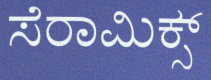
ಸೆರಾಮಿಕ್ಸ್